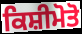
ਕਿਸ਼ੀਮੋਤੋ